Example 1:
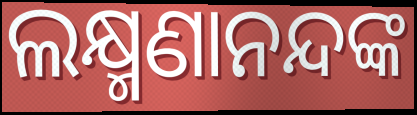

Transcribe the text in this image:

ଲକ୍ଷ୍ମଣାନନ୍ଦଙ୍କ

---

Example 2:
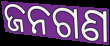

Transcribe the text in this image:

ଜନଗଣ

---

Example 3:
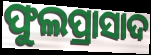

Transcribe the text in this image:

ଫୁଲପ୍ରାସାଦ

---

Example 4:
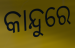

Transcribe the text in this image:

କାନ୍ଦୁରେ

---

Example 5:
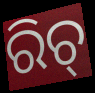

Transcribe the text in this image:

ରିଚ୍